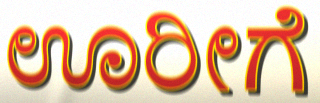
ಊರೀಗೆ